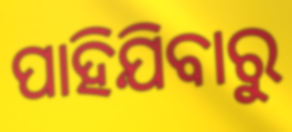
ପାହିଯିବାରୁ